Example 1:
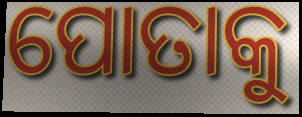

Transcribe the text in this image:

ପୋତାକୁ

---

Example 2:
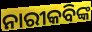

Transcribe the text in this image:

ନାରୀକବିଙ୍କ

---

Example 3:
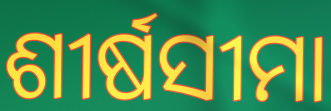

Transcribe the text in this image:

ଶୀର୍ଷସୀମା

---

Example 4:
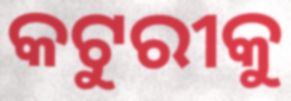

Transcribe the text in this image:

କଟୁରୀକୁ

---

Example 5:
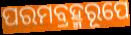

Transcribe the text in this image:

ପରମବ୍ରହ୍ମରୂପେ